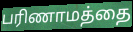
பரிணாமத்தை